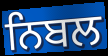
ਨਿਬਲ